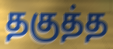
தகுத்த